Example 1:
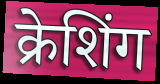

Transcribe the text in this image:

क्रेशिंग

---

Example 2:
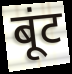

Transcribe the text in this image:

बूंट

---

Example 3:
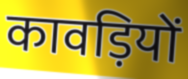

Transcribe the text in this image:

कावड़ियों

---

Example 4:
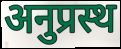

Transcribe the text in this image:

अनुप्रस्थ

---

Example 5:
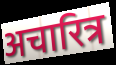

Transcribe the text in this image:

अचारित्र